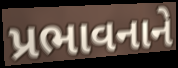
પ્રભાવનાને